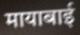
मायाबाई